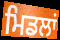
ਮਿਡਲਾਂ